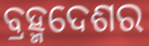
ବ୍ରହ୍ମଦେଶର